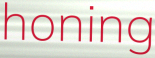
honing